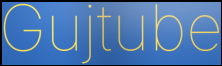
Gujtube